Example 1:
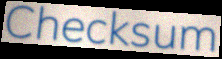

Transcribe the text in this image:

Checksum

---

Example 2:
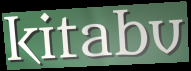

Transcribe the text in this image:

kitabu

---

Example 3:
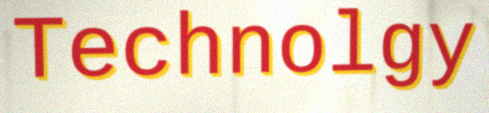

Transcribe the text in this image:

Technolgy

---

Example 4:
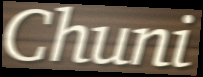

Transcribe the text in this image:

Chuni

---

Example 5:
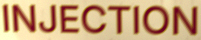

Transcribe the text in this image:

INJECTION